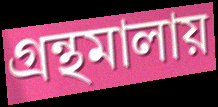
গ্রন্থমালায়